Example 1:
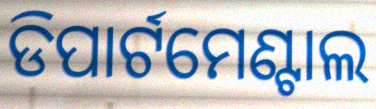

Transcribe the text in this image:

ଡିପାର୍ଟମେଣ୍ଟାଲ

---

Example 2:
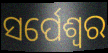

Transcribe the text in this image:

ସର୍ପେଶ୍ଵର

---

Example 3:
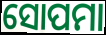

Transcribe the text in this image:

ସୋପମା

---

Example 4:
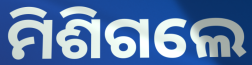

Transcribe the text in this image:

ମିଶିଗଲେ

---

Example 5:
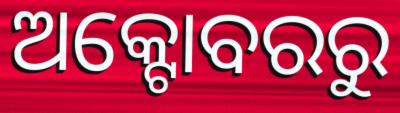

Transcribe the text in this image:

ଅକ୍ଟୋବରରୁ